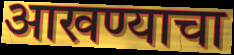
आखण्याचा